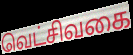
வெட்சிவகை